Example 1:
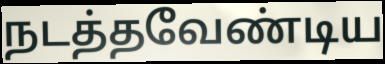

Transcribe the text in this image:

நடத்தவேண்டிய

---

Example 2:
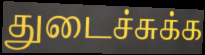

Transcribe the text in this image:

துடைச்சுக்க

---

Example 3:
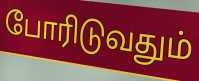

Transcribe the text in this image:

போரிடுவதும்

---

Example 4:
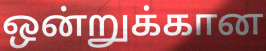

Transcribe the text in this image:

ஒன்றுக்கான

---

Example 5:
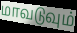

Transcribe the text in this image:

மாவடுவும்